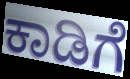
ಕಾಡಿಗೆ